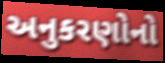
અનુકરણોનો